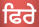
ਫਿਰੇ